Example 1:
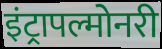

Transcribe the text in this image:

इंट्रापल्मोनरी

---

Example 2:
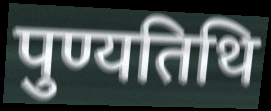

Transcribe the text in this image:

पुण्यतिथि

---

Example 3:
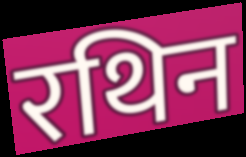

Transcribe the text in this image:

रथिन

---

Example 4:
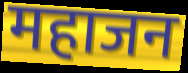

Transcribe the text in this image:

महाजन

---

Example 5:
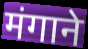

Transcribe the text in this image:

मंगाने